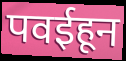
पवईहून